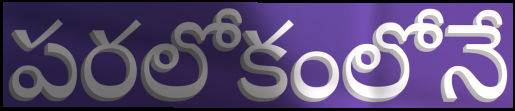
పరలోకంలోనే